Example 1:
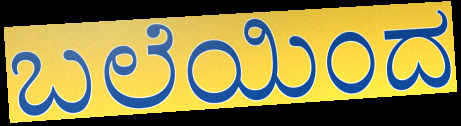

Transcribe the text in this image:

ಬಲೆಯಿಂದ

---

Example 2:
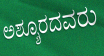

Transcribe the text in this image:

ಅಶ್ಶೂರದವರು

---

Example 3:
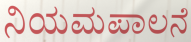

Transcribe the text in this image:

ನಿಯಮಪಾಲನೆ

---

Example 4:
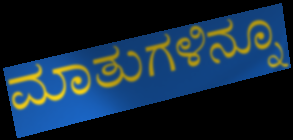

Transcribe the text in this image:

ಮಾತುಗಳಿನ್ನೂ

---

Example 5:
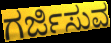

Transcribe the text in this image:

ಗರ್ಜಿಸುವ